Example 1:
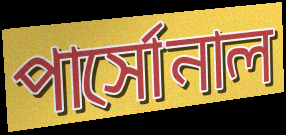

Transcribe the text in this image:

পার্সোনাল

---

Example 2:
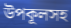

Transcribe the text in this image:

উপকূলসহ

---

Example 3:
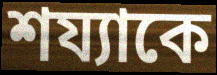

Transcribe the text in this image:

শয্যাকে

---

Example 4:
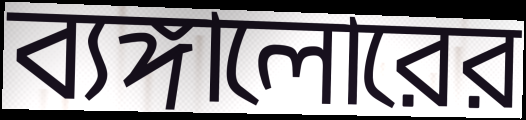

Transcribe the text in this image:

ব্যঙ্গালোরের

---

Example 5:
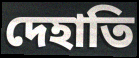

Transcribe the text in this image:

দেহাতি